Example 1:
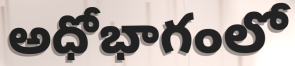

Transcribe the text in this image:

అధోభాగంలో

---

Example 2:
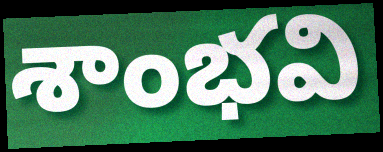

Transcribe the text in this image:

శాంభవి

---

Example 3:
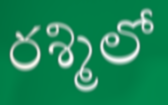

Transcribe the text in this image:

రశ్మిలో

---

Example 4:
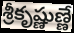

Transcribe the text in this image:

శ్రీకృష్ణుణ్ణే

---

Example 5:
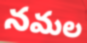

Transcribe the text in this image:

నమల